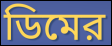
ডিমের